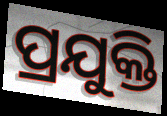
ପ୍ରଯୁକ୍ତି